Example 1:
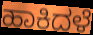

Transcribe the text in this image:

ಹಾಕಿದಳೆ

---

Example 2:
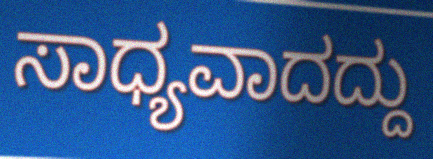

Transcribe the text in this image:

ಸಾಧ್ಯವಾದದ್ದು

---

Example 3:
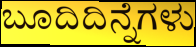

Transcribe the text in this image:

ಬೂದಿದಿನ್ನೆಗಳು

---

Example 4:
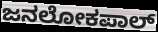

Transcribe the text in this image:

ಜನಲೋಕಪಾಲ್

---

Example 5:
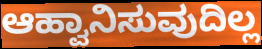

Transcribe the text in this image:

ಆಹ್ವಾನಿಸುವುದಿಲ್ಲ